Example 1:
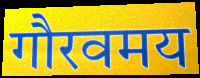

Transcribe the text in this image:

गौरवमय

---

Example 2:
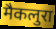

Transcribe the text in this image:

मैकलुरा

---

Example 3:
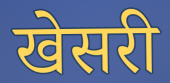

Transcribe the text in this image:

खेसरी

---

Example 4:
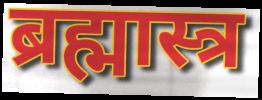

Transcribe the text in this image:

ब्रह्मास्त्र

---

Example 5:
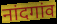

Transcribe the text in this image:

नांदगांव